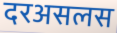
दरअसलस